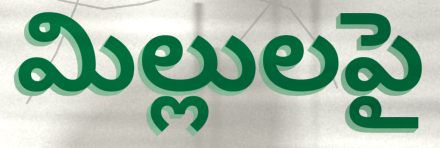
మిల్లులపై